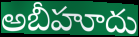
అబీహూదు